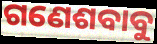
ଗଣେଶବାବୁ